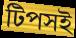
টিপসই